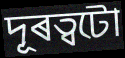
দূৰত্বটো